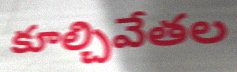
కూల్చివేతల